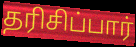
தரிசிப்பார்